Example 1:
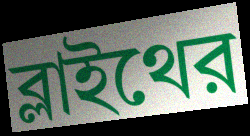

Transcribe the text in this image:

ব্লাইথের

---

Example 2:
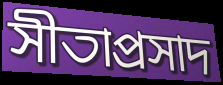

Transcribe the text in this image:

সীতাপ্রসাদ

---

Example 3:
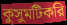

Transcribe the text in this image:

কুসুমটিকরি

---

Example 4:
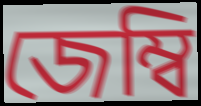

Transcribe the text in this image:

জেম্বি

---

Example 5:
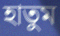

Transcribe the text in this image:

হাতুম